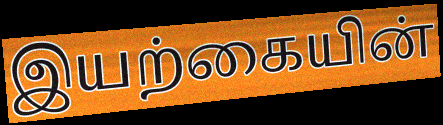
இயற்கையின்